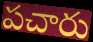
పచారు